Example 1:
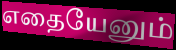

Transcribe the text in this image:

எதையேனும்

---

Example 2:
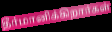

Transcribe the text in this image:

தீர்மானிக்கிறார்கள்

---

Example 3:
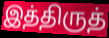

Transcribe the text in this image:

இத்திருத்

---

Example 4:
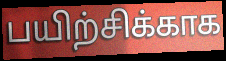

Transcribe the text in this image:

பயிற்சிக்காக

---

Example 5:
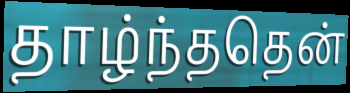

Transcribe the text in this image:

தாழ்ந்ததென்